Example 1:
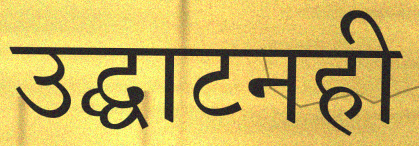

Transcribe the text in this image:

उद्घाटनही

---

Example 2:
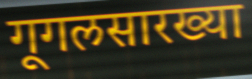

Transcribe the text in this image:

गूगलसारख्या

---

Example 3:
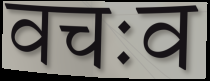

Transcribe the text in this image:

वचःव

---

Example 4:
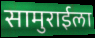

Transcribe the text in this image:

सामुराईला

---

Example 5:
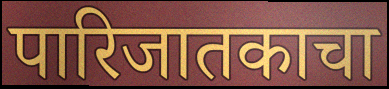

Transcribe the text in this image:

पारिजातकाचा